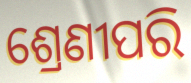
ଶ୍ରେଣୀପରି